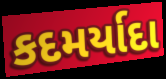
કદમર્યાદા